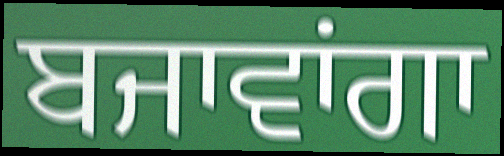
ਬਜਾਵਾਂਗਾ